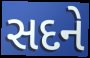
સદને